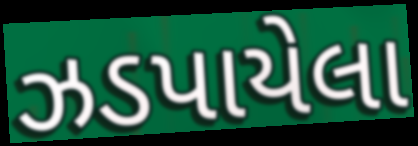
ઝડપાયેલા